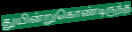
துயின்றுகொண்டிருந்த